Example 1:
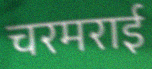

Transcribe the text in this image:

चरमराई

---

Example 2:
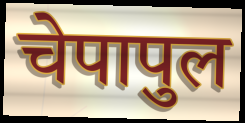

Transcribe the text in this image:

चेपापुल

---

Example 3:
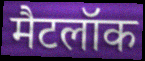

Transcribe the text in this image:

मैटलॉक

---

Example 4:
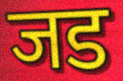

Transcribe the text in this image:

जड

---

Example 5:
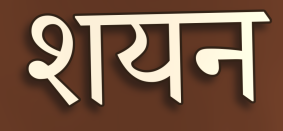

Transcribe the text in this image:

शयन